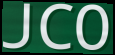
JCO